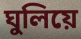
ঘুলিয়ে